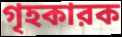
গৃহকারক